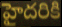
హైదరికి